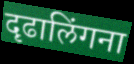
दृढालिंगना